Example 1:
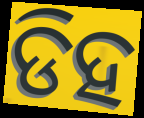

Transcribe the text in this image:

ଡିହ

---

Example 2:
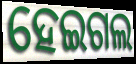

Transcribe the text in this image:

ହେଇଗଲ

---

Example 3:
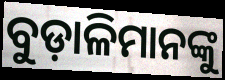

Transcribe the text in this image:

ବୁଡ଼ାଳିମାନଙ୍କୁ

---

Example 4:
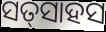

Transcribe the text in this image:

ସତ୍‌ସାହସ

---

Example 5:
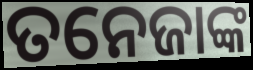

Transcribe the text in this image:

ତନେଜାଙ୍କ